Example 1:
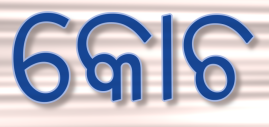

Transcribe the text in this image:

କୋଚ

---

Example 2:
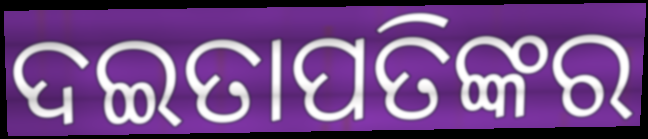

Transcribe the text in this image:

ଦଇତାପତିଙ୍କର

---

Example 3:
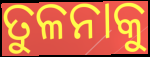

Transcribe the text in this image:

ତୁଳନାକୁ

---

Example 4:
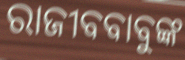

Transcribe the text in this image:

ରାଜୀବବାବୁଙ୍କ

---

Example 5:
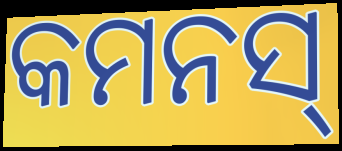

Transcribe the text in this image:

କମନସ୍